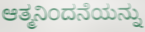
ಆತ್ಮನಿಂದನೆಯನ್ನು